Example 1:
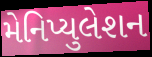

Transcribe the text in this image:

મેનિપ્યુલેશન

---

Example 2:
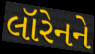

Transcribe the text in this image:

લૉરેનને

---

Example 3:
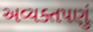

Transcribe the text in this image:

અવ્યક્તપણું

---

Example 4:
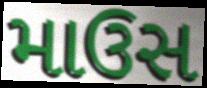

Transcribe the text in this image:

માઉસ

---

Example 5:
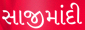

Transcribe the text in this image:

સાજીમાંદી